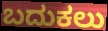
ಬದುಕಲು